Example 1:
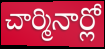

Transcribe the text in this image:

చార్మినార్లో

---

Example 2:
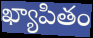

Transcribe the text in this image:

ఖ్యాపితం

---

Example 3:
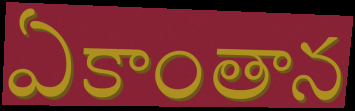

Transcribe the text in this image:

ఏకాంతాన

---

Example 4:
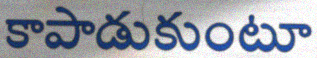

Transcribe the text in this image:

కాపాడుకుంటూ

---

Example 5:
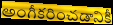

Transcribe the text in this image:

అంగీకరించడానికీ